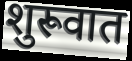
शुरूवात